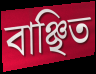
বাঞ্ছিত